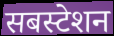
सबस्टेशन